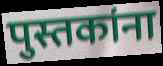
पुस्तकांना